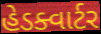
હેડક્વાર્ટર